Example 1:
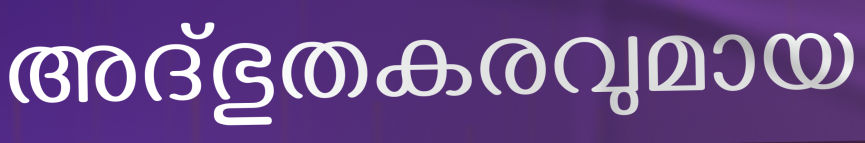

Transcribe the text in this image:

അദ്ഭുതകരവുമായ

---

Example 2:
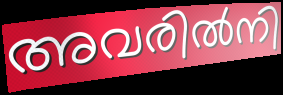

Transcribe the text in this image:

അവരിൽനി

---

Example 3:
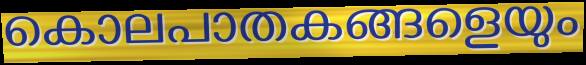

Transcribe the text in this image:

കൊലപാതകങ്ങളെയും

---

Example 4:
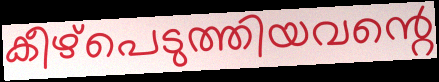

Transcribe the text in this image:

കീഴ്പെടുത്തിയവന്റെ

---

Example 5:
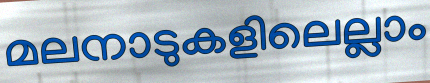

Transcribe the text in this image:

മലനാടുകളിലെല്ലാം